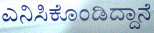
ಎನಿಸಿಕೊಂಡಿದ್ದಾನೆ